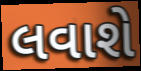
લવાશે